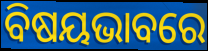
ବିଷୟଭାବରେ